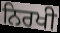
ਨਿਰਖੀ